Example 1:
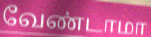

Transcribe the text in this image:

வேண்டாமா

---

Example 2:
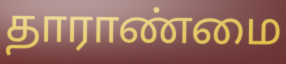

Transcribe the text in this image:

தாராண்மை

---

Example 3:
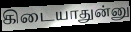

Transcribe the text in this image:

கிடையாதுன்னு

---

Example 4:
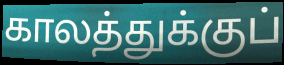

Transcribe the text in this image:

காலத்துக்குப்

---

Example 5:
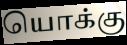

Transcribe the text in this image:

யொக்கு